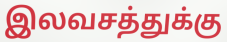
இலவசத்துக்கு